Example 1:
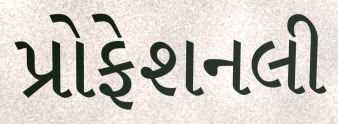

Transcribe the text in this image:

પ્રોફેશનલી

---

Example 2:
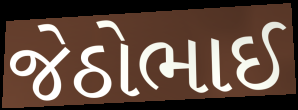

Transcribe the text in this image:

જેઠોભાઈ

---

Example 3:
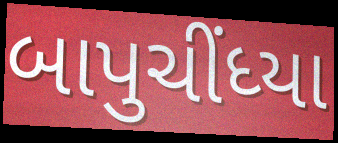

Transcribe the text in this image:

બાપુચીંધ્યા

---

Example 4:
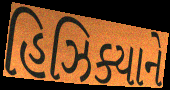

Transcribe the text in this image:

હિઝિક્યાને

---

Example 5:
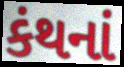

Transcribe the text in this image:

કંથનાં